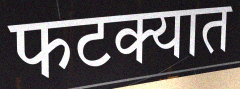
फटक्यात